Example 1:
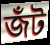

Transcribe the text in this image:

জঁট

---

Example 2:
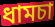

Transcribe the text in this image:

ধামচা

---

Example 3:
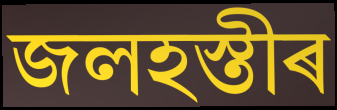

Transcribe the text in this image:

জলহস্তীৰ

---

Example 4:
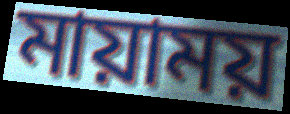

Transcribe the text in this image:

মায়াময়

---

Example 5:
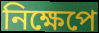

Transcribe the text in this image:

নিক্ষেপে